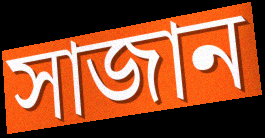
সাজান